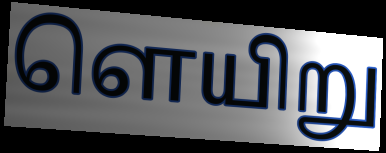
ளெயிறு